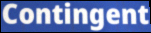
Contingent